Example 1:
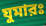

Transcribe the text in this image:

যুমারঃ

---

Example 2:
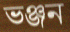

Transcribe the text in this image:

ভঞ্জন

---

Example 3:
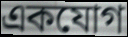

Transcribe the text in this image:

একযোগ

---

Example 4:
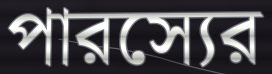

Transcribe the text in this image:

পারস্যের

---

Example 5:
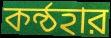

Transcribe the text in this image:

কন্ঠহার